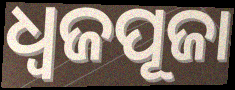
ଧ୍ୱଜପୂଜା